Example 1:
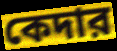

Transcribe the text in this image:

কেদার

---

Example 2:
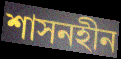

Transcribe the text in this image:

শাসনহীন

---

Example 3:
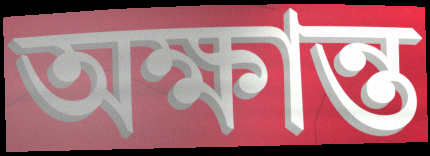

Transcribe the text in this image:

অক্ষান্ত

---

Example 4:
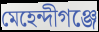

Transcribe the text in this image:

মেহেন্দীগঞ্জে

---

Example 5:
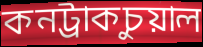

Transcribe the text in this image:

কনট্রাকচুয়াল